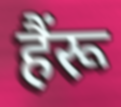
हैंरू